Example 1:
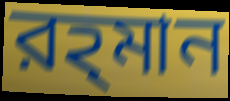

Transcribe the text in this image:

রহ্‌মান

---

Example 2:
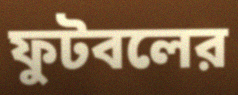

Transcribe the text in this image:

ফুটবলের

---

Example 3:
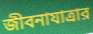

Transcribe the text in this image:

জীবনাযাত্রার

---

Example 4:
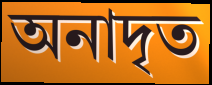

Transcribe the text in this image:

অনাদৃত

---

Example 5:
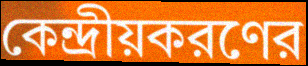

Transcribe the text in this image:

কেন্দ্রীয়করণের